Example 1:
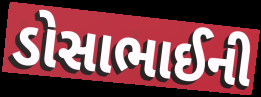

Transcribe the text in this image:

ડોસાભાઈની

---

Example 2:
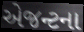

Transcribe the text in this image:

એજન્ટના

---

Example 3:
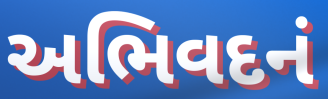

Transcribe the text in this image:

અભિવદનં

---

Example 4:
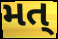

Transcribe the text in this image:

મત્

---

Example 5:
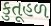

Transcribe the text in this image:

કુતૂહળ